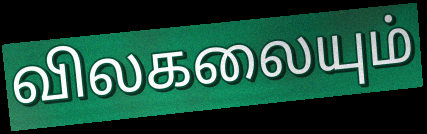
விலகலையும்